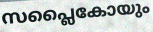
സപ്ലൈകോയും